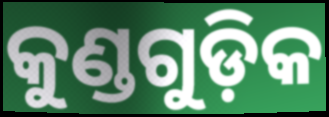
କୁଣ୍ଡଗୁଡ଼ିକ